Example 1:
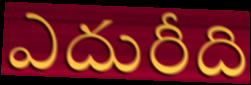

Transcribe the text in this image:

ఎదురీది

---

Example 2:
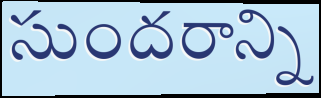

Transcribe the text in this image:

సుందరాన్ని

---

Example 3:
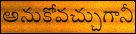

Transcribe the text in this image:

అనుకోవచ్చుగానీ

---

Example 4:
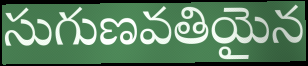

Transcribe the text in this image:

సుగుణవతియైన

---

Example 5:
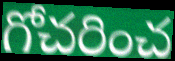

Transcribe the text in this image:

గోచరించ